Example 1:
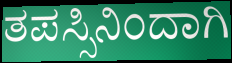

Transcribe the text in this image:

ತಪಸ್ಸಿನಿಂದಾಗಿ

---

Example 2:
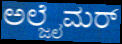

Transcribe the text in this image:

ಅಲ್ಜೈಮರ್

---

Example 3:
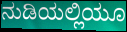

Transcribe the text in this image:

ನುಡಿಯಲ್ಲಿಯೂ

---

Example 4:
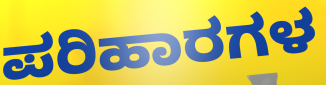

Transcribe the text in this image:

ಪರಿಹಾರಗಳ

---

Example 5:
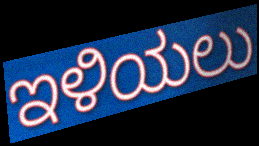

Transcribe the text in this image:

ಇಳಿಯಲು